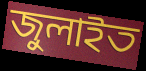
জুলাইত